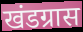
खंडग्रास